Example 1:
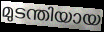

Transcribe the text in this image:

മുടന്തിയായ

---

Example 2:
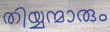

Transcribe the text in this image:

തിയ്യന്മാരും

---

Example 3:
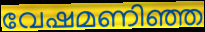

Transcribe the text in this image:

വേഷമണിഞ്ഞ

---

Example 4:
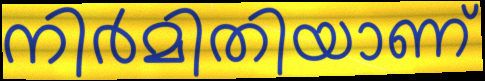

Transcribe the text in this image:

നിർമിതിയാണ്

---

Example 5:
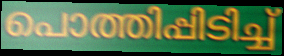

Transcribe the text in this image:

പൊത്തിപ്പിടിച്ച്